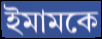
ইমামকে